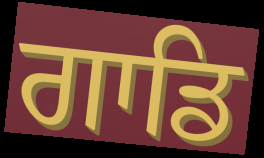
ਗਾਡਿ